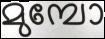
മുമ്പോ